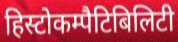
हिस्टोकम्पैटिबिलिटी